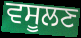
ਵਸੂਲਣ